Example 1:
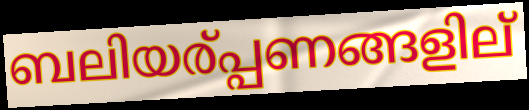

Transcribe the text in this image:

ബലിയര്പ്പണങ്ങളില്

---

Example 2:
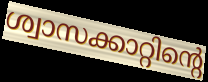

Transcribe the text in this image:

ശ്വാസക്കാറ്റിന്റെ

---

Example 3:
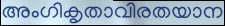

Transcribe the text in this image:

അംഗികൃതാവിരതയാന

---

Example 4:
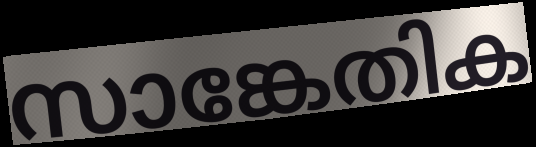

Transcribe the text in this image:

സാങ്കേതിക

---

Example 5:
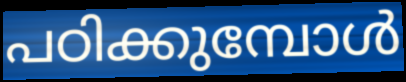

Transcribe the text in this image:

പഠിക്കുമ്പോൾ